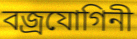
বজ্রযোগিনী